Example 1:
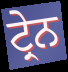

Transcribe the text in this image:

ਟ੍ਰੇਨ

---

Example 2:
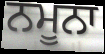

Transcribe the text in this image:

ਨਮੂਨਾ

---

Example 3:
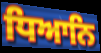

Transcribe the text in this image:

ਧਿਆਨਿ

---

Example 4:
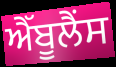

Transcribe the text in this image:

ਐੱਬੂਲੈਂਸ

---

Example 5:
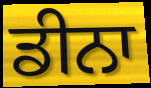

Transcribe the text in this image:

ਡੀਨਾ